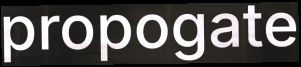
propogate